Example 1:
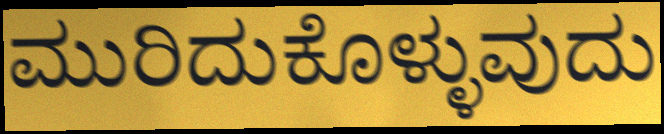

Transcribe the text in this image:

ಮುರಿದುಕೊಳ್ಳುವುದು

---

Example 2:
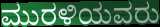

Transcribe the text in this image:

ಮುರಳಿಯವರು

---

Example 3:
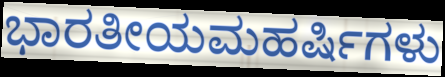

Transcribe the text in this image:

ಭಾರತೀಯಮಹರ್ಷಿಗಳು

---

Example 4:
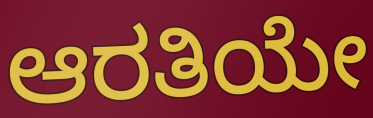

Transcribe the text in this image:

ಆರತಿಯೇ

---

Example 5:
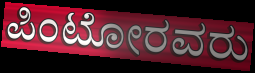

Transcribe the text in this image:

ಪಿಂಟೋರವರು